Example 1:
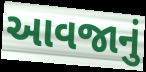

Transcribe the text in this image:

આવજાનું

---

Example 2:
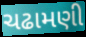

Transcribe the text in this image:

ચઢામણી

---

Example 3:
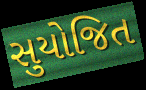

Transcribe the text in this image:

સુયોજિત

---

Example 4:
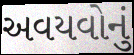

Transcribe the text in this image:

અવયવોનું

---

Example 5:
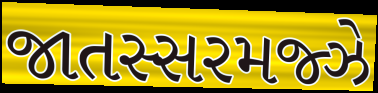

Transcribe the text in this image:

જાતસ્સરમજ્ઝે